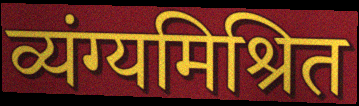
व्यंग्यमिश्रित